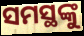
ସମସ୍ଥଙ୍କୁ